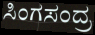
ಸಿಂಗಸಂದ್ರ